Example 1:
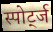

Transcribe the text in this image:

स्पोर्ट्ज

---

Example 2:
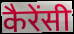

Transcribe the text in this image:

कैरेंसी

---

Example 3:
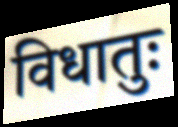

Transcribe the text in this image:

विधातुः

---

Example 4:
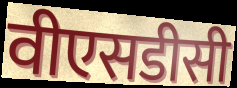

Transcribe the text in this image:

वीएसडीसी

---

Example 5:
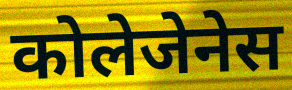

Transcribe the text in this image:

कोलेजेनेस